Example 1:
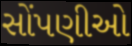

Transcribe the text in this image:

સોંપણીઓ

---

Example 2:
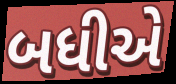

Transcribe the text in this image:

બધીએ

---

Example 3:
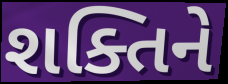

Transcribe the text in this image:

શક્તિને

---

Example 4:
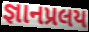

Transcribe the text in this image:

જ્ઞાનપ્રલય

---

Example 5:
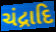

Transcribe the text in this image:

ચંદ્રાદિ